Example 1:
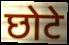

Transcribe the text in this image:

छोटे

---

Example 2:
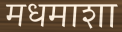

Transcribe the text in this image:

मधमाशा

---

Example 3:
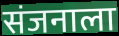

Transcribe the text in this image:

संजनाला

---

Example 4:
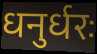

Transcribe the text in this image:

धनुर्धरः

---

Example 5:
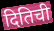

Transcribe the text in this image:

दितिची